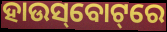
ହାଉସ୍‌ବୋଟ୍‌ରେ